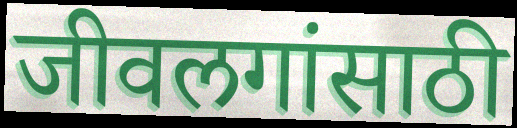
जीवलगांसाठी